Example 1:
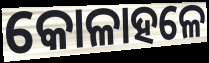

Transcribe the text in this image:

କୋଳାହଳେ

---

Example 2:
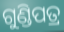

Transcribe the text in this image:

ଗୁଣ୍ଡିପତ୍ର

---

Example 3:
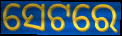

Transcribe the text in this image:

ସେଟରେ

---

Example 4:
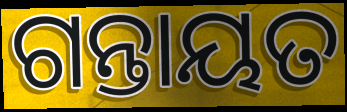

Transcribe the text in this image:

ଗନ୍ତାୟତ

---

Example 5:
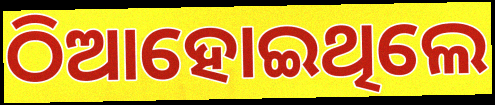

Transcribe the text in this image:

ଠିଆହୋଇଥିଲେ